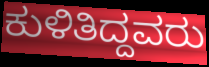
ಕುಳಿತಿದ್ದವರು